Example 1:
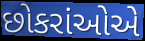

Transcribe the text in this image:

છોકરાંઓએ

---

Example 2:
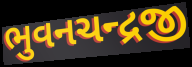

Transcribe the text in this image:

ભુવનચન્દ્રજી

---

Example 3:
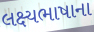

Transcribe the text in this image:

લક્ષ્યભાષાના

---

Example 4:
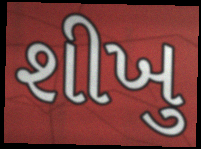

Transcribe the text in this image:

શીખુ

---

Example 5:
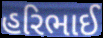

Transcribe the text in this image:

હરિભાઈ